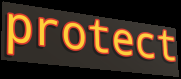
protect